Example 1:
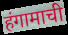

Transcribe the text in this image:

हंगामाची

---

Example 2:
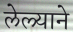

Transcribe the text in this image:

लेल्याने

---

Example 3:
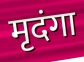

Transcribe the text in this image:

मृदंगा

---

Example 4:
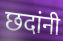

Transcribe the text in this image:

छदांनी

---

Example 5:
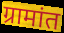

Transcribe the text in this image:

ग्रामांत